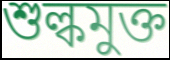
শুল্কমুক্ত